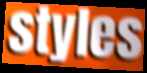
styles